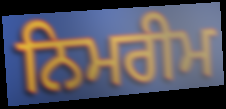
ਨਿਮਰੀਮ